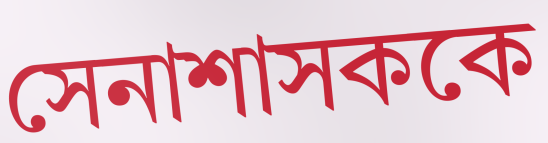
সেনাশাসককে